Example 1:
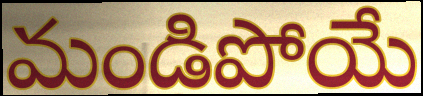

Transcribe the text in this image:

మండిపోయే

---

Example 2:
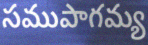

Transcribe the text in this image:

సముపాగమ్య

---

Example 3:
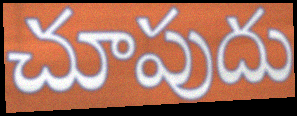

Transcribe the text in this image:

చూపుదు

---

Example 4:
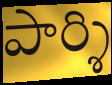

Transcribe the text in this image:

పార్శి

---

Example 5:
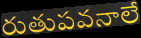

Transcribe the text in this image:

రుతుపవనాలే